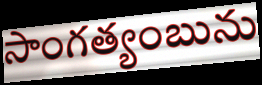
సాంగత్యంబును